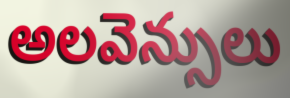
అలవెన్సులు